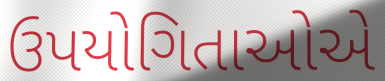
ઉપયોગિતાઓએ